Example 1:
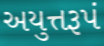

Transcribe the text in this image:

અયુત્તરૂપં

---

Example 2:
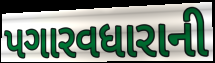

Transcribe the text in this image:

પગારવધારાની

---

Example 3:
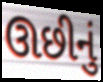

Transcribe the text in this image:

ઊછીનું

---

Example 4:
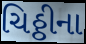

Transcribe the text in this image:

ચિઠ્ઠીના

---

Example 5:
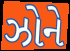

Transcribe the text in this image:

ઝોને